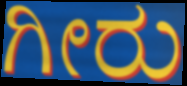
ಗೀರು